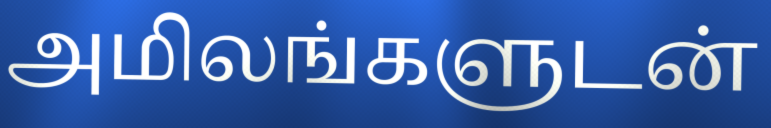
அமிலங்களுடன்